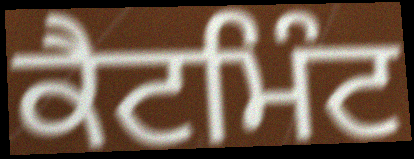
ਕੈਟਮਿੰਟ